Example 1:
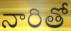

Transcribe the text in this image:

నారితో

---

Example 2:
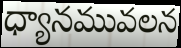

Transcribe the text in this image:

ధ్యానమువలన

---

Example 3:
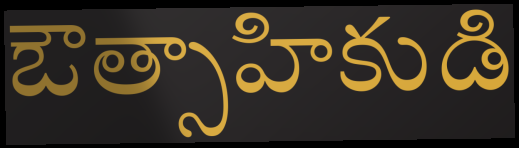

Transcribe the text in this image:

ఔత్సాహికుడి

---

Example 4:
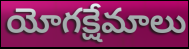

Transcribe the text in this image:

యోగక్షేమాలు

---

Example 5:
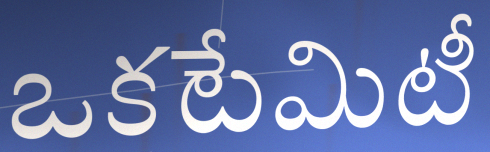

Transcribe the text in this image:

ఒకటేమిటీ